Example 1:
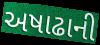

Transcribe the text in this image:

અષાઢાની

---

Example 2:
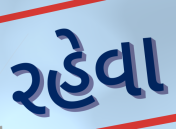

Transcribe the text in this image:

રહેવા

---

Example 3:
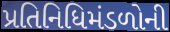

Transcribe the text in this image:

પ્રતિનિધિમંડળોની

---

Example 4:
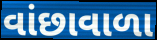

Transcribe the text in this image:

વાંછાવાળા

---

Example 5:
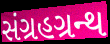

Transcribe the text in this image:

સંગ્રહગ્રન્થ